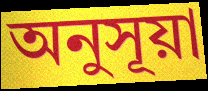
অনুসূয়া